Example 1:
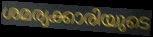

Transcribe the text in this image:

ശമര്യക്കാരിയുടെ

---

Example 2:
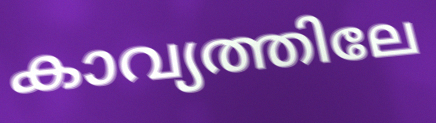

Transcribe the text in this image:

കാവ്യത്തിലേ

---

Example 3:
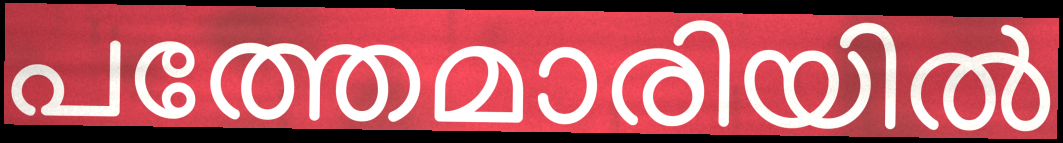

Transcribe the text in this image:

പത്തേമാരിയിൽ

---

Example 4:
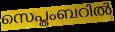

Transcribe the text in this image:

സെപ്തംബറിൽ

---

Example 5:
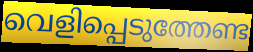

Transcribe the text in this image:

വെളിപ്പെടുത്തേണ്ട